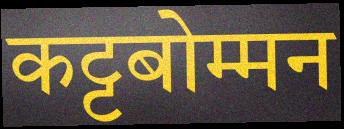
कट्टबोम्मन